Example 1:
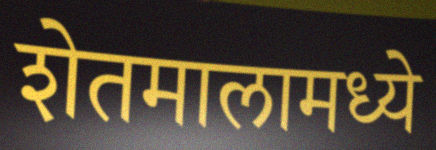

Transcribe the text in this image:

शेतमालामध्ये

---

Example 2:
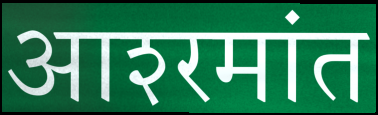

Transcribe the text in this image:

आश्रमांत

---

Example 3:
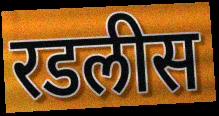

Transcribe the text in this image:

रडलीस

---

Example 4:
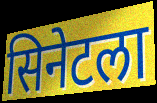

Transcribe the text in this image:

सिनेटला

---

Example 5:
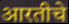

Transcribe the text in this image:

आरतीचे